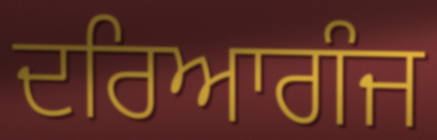
ਦਰਿਆਗੰਜ